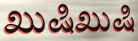
ಖುಷಿಖುಷಿ